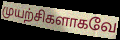
முயற்சிகளாகவே